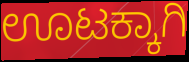
ಊಟಕ್ಕಾಗಿ